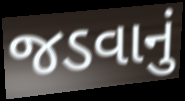
જડવાનું